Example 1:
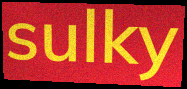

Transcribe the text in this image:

sulky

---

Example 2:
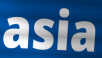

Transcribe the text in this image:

asia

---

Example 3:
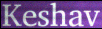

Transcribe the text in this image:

Keshav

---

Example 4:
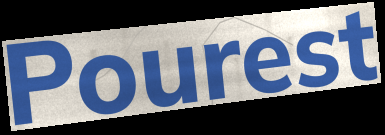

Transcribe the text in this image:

Pourest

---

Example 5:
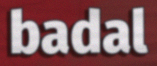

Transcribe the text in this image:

badal